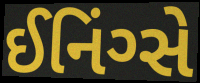
ઈનિંગ્સે